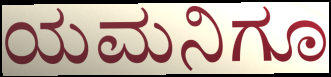
ಯಮನಿಗೂ